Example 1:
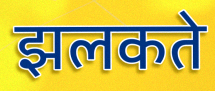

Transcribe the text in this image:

झलकते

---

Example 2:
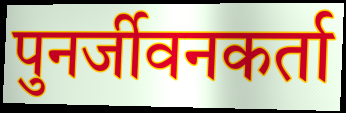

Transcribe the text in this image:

पुनर्जीवनकर्ता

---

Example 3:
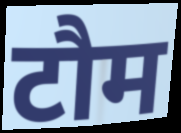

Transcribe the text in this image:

टौम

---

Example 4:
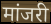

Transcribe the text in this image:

मांजरी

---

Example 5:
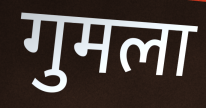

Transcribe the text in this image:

गुमला